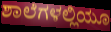
ಶಾಲೆಗಳಲ್ಲಿಯೂ